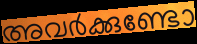
അവർക്കുണ്ടോ